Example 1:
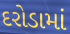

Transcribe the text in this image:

દરોડામાં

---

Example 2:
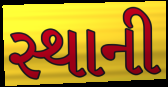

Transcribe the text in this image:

સ્થાની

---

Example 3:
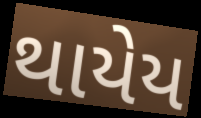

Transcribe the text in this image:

થાયેય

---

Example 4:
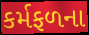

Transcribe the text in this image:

કર્મફળના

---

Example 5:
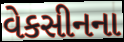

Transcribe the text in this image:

વેકસીનના